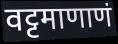
वट्टमाणाणं